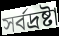
সর্বদ্রষ্টা